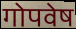
गोपवेष